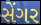
સેંગર